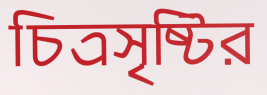
চিত্রসৃষ্টির